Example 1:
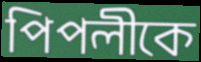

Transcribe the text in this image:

পিপলীকে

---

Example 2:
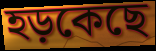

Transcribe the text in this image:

হড়কেছে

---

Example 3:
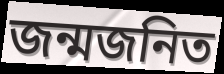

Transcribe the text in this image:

জন্মজনিত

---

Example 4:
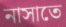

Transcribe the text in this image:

নাসাতে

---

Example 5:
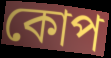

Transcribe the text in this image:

কোপ